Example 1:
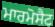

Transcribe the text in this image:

ਮਾਰਮੋਸੈਟ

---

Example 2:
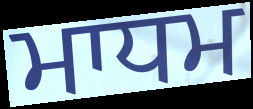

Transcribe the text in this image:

ਮਾਧਮ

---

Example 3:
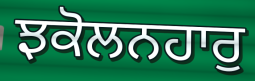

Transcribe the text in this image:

ਝਕੋਲਨਹਾਰੁ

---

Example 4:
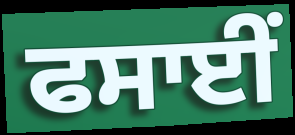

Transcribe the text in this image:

ਫਸਾਈਂ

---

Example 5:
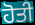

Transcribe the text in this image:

ਹੋਤੀ